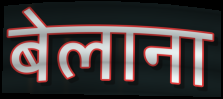
बेलाना